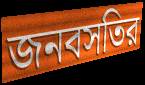
জনবসতির